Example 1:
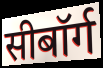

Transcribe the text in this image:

सीबॉर्ग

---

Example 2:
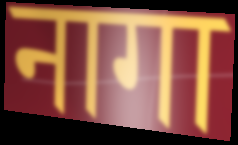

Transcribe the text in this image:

नागा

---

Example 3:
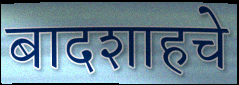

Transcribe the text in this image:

बादशाहचे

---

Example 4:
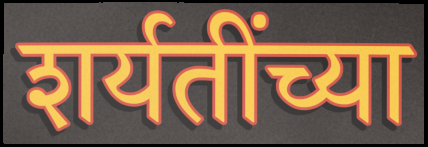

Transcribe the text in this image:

शर्यतींच्या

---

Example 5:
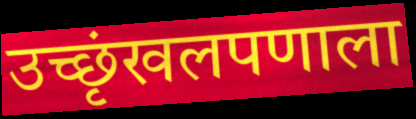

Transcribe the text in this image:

उच्छृंखलपणाला